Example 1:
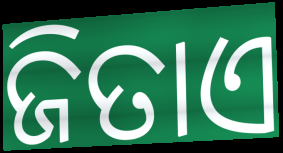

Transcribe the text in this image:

ଜିତାଏ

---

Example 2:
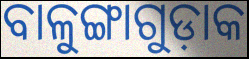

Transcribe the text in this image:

ବାଳୁଙ୍ଗାଗୁଡ଼ାକ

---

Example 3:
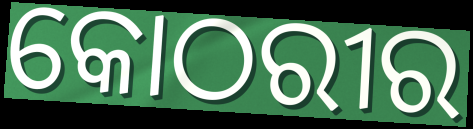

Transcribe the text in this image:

କୋଠରୀର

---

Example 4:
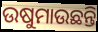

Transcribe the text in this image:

ଉଷୁମାଉଛନ୍ତି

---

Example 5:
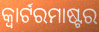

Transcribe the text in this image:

କ୍ୱାର୍ଟରମାଷ୍ଟର